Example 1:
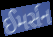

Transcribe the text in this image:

ઈમર્સન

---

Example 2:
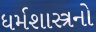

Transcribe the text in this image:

ધર્મશાસ્ત્રનો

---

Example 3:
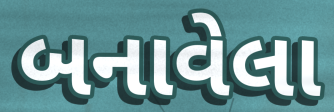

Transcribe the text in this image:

બનાવેલા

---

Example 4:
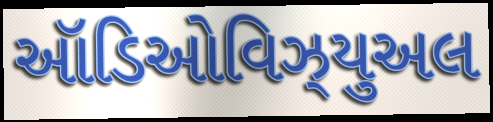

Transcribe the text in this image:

ઑડિઓવિઝ્યુઅલ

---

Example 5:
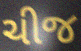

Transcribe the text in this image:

ચીજ